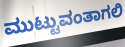
ಮುಟ್ಟುವಂತಾಗಲಿ